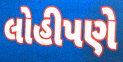
લોહીપણે